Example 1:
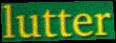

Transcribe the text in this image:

lutter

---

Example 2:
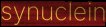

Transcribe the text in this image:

synuclein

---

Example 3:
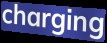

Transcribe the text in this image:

charging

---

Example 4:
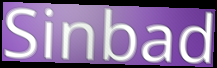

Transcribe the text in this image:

Sinbad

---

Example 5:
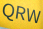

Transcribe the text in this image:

QRW